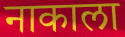
नाकाला